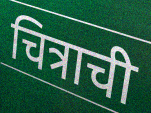
चित्राची